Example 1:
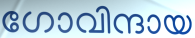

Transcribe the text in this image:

ഗോവിന്ദായ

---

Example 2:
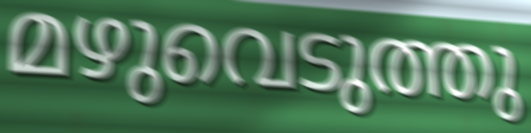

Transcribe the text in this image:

മഴുവെടുത്തു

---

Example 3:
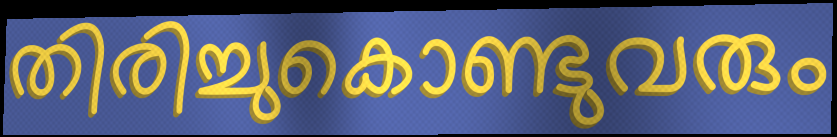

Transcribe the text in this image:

തിരിച്ചുകൊണ്ടുവരും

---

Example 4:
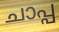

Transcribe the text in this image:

ചാപ്പ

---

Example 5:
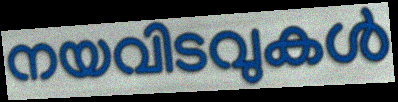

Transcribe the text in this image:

നയവിടവുകൾ